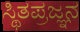
ಸ್ಥಿತಪ್ರಜ್ಞನ